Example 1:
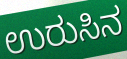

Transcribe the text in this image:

ಉರುಸಿನ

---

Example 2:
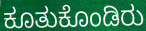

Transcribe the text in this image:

ಕೂತುಕೊಂಡಿರು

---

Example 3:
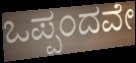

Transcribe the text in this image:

ಒಪ್ಪಂದವೇ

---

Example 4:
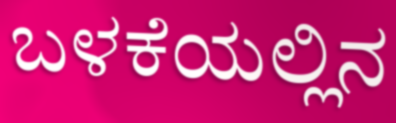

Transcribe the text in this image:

ಬಳಕೆಯಲ್ಲಿನ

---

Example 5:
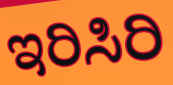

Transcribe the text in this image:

ಇರಿಸಿರಿ